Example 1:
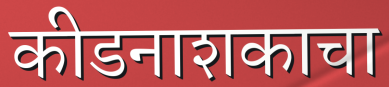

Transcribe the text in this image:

कीडनाशकाचा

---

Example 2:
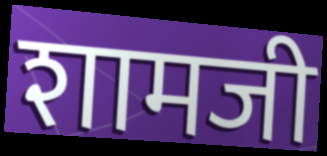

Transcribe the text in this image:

शामजी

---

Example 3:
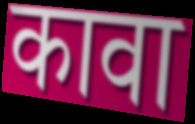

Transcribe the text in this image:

कावा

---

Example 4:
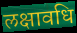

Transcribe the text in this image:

लक्षावधि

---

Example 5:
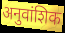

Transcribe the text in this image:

अनुवांशिक